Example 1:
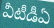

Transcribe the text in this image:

వీటీడీఏ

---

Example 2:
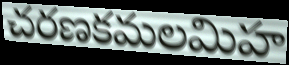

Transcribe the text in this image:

చరణకమలమిహ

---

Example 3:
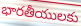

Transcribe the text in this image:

భారతీయులకు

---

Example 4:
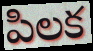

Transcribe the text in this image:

పిలక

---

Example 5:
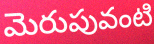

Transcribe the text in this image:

మెరుపువంటి